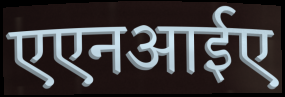
एएनआईए